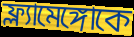
ফ্ল্যামেঙ্গোকে